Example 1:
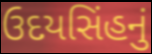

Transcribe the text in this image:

ઉદયસિંહનું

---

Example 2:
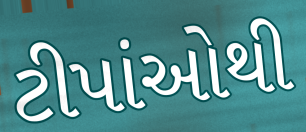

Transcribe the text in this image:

ટીપાંઓથી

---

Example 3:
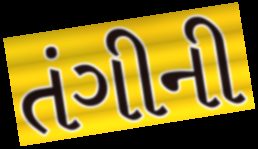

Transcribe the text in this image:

તંગીની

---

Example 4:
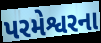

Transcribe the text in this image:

પરમેશ્વરના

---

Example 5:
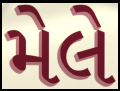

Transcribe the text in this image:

મેલે